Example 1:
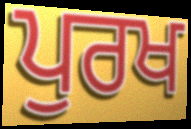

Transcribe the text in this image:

ਪੁਰਖ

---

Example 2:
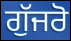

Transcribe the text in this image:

ਗੁੱਜਰੋ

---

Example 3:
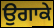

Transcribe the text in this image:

ਉਗਾਕੇ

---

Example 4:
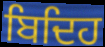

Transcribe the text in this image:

ਬਿਦਿਹ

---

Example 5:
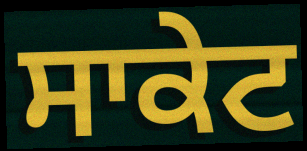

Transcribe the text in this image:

ਸਾਕੇਟ